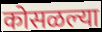
कोसळल्या